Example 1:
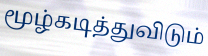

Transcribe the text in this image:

மூழ்கடித்துவிடும்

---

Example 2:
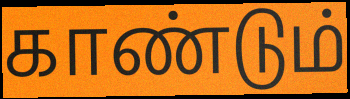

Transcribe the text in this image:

காண்டும்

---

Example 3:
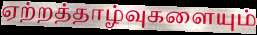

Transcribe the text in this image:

ஏற்றத்தாழ்வுகளையும்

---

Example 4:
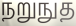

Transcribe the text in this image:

நறுநுத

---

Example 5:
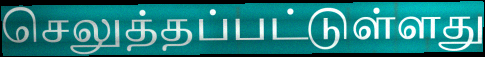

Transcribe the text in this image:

செலுத்தப்பட்டுள்ளது